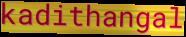
kadithangal